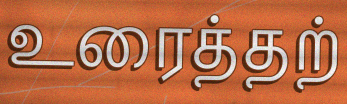
உரைத்தற்